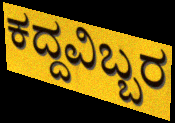
ಕದ್ದವಿಬ್ಬರ